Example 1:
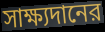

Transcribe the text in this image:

সাক্ষ্যদানের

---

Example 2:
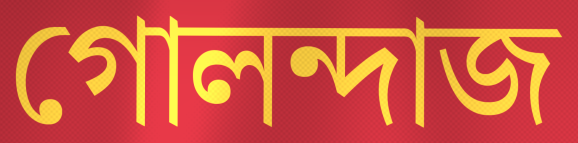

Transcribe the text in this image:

গোলন্দাজ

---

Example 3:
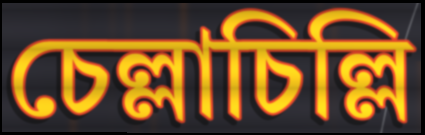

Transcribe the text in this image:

চেল্লাচিল্লি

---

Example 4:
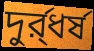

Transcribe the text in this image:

দুর্র্ধর্ষ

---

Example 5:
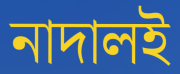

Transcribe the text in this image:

নাদালই